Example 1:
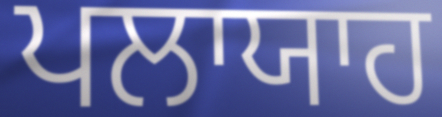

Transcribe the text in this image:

ਪਲਾਯਾਹ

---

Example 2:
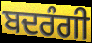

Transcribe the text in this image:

ਬਦਰੰਗੀ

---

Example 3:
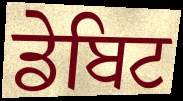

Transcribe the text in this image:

ਡੇਬਿਟ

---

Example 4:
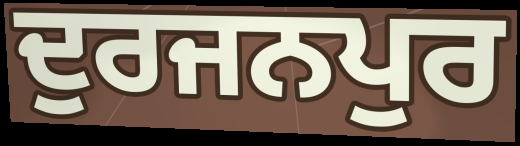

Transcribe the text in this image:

ਦੁਰਜਨਪੁਰ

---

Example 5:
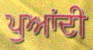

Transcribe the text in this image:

ਪੁਆਂਦੀ